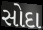
સોદા